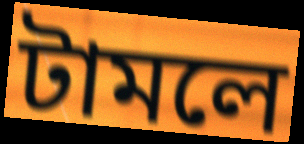
টামলে